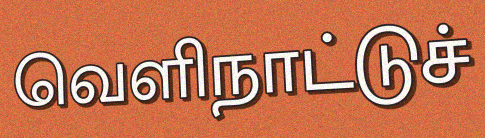
வெளிநாட்டுச்